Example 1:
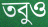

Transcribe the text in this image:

তবুও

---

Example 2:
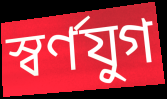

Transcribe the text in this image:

স্বর্ণযুগ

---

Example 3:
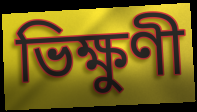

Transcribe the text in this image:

ভিক্ষুণী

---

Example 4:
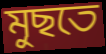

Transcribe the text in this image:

মুছতে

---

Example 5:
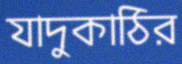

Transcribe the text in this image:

যাদুকাঠির